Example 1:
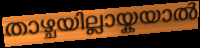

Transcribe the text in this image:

താഴ്ചയില്ലായ്കയാൽ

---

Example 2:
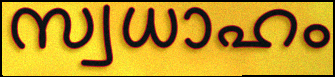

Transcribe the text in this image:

സ്വധാഹം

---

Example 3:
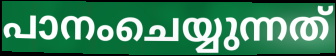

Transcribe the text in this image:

പാനംചെയ്യുന്നത്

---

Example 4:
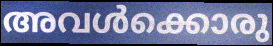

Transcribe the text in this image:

അവൾക്കൊരു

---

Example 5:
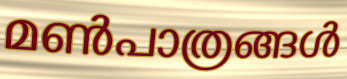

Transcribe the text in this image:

മൺപാത്രങ്ങൾ